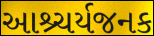
આશ્ર્ચર્યજનક